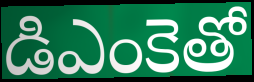
డిఎంకెతో